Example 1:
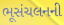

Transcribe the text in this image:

ભૂસંચલનની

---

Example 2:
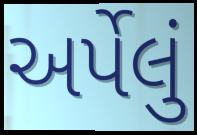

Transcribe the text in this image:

અર્પેલું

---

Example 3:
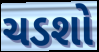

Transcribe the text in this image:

ચડશો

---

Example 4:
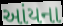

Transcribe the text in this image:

આંયના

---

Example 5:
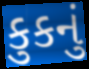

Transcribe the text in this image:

કુકનું